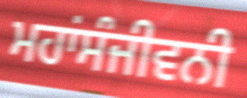
ਮਹਾਂਸੰਜੀਵਨੀ